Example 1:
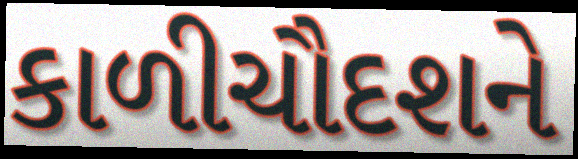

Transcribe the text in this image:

કાળીચૌદશને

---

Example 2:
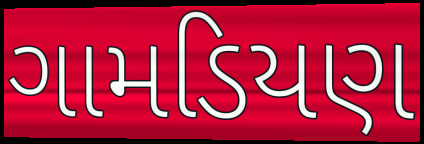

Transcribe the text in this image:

ગામડિયણ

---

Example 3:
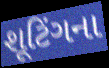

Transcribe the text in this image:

શૂટિંગના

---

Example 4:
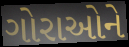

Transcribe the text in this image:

ગોરાઓને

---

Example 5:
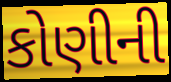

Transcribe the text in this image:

કોણીની